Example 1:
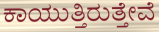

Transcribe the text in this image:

ಕಾಯುತ್ತಿರುತ್ತೇವೆ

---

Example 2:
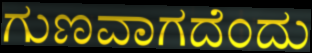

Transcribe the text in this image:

ಗುಣವಾಗದೆಂದು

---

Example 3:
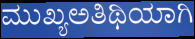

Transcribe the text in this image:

ಮುಖ್ಯಅತಿಥಿಯಾಗಿ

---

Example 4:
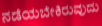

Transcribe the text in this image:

ನಡೆಯಬೇಕಿರುವುದು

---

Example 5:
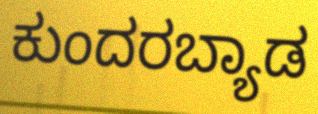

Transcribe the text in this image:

ಕುಂದರಬ್ಯಾಡ